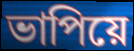
ভাপিয়ে